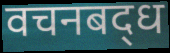
वचनबद्ध